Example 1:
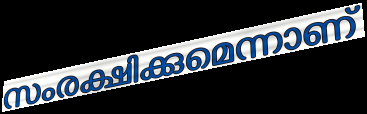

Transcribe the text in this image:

സംരക്ഷിക്കുമെന്നാണ്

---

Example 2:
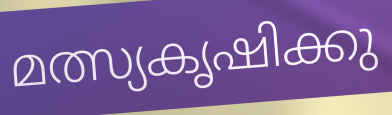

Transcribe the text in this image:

മത്സ്യകൃഷിക്കു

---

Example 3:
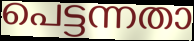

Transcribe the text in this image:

പെട്ടന്നതാ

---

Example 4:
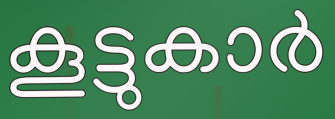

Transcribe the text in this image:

കൂട്ടുകാർ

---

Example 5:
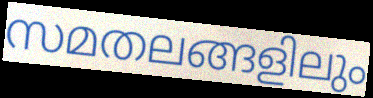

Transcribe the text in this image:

സമതലങ്ങളിലും